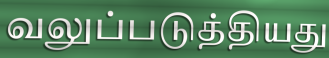
வலுப்படுத்தியது